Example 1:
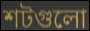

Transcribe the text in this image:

শটগুলো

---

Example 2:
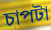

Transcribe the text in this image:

চাপটা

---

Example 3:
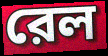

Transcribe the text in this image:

রেল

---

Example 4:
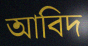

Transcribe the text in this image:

আবিদ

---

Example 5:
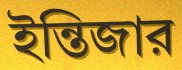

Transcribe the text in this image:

ইন্তিজার